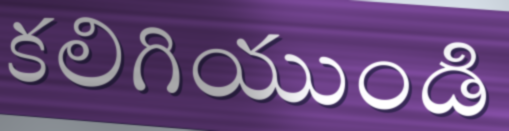
కలిగియుండి